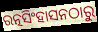
ରତ୍ନସିଂହାସନଠାରୁ